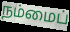
நம்மைப்